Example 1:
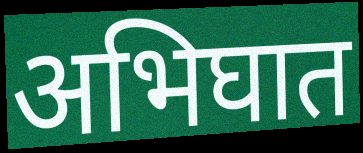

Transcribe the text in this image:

अभिघात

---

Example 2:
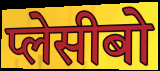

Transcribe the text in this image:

प्लेसीबो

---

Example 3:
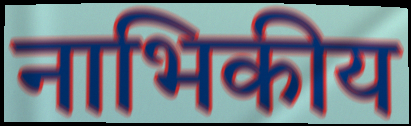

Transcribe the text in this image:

नाभिकीय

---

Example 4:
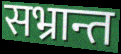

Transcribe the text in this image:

सभ्रान्त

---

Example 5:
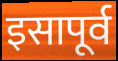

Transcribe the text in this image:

इसापूर्व